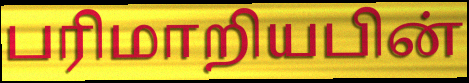
பரிமாறியபின்